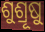
ଶୁଶ୍ରୂଷୁ